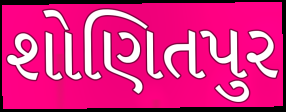
શોણિતપુર